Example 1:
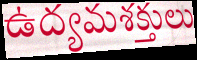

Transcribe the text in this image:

ఉద్యమశక్తులు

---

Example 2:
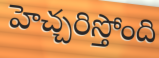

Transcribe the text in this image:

హెచ్చరిస్తోంది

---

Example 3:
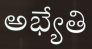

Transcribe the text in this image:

అభ్యేతి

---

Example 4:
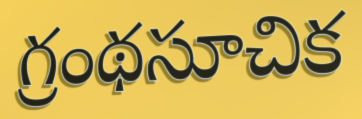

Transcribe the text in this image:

గ్రంథసూచిక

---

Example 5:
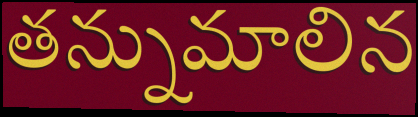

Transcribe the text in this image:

తన్నుమాలిన